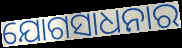
ଯୋଗସାଧନାର